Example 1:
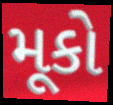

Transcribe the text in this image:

મૂકો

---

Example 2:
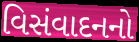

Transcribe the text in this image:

વિસંવાદનનો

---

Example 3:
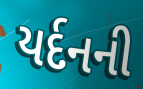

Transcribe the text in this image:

યર્દનની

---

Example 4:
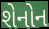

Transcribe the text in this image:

શેનોન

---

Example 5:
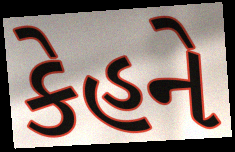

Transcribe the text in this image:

કેહને